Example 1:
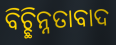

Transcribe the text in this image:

ବିଚ୍ଛିନ୍ନତାବାଦ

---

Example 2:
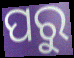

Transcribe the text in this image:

ପରୁ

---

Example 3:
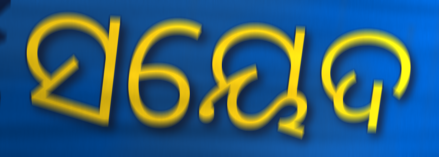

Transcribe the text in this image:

ସୟେଦ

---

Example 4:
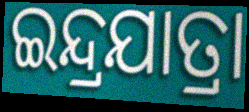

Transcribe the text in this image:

ଇନ୍ଦ୍ରଯାତ୍ରା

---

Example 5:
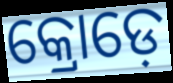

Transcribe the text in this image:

କ୍ରୋଡ଼େ